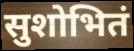
सुशोभितं